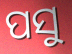
ପସୁ